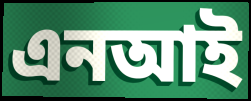
এনআই